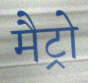
मैट्रो